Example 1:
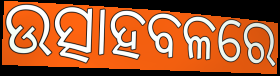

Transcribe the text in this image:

ଉତ୍ସାହବଳରେ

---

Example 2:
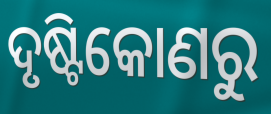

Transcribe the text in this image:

ଦୃଷ୍ଟିକୋଣରୁ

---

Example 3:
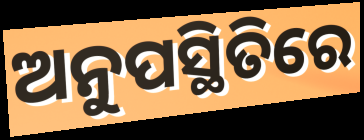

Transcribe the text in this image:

ଅନୁପସ୍ଥିତିରେ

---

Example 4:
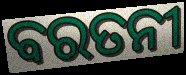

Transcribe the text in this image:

ବରତନୀ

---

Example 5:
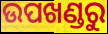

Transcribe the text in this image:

ଉପଖଣ୍ଡରୁ